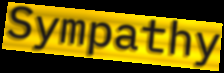
Sympathy